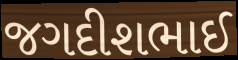
જગદીશભાઈ